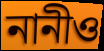
নানীও